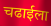
चढाईला